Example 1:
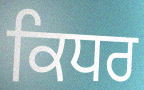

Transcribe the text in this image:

ਕਿਧਰ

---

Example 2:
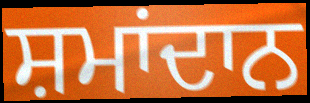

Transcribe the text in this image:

ਸ਼ਮਾਂਦਾਨ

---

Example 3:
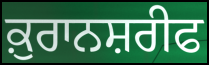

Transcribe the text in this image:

ਕ਼ੁਰਾਨਸ਼ਰੀਫ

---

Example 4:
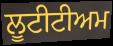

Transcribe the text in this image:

ਲੂਟੀਟੀਅਮ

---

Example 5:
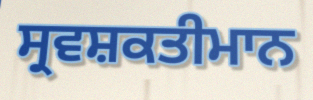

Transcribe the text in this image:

ਸ੍ਰਵਸ਼ਕਤੀਮਾਨ